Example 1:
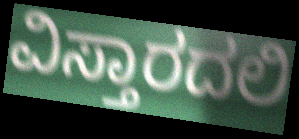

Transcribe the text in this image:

ವಿಸ್ತಾರದಲಿ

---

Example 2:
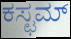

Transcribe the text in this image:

ಕಸ್ಟಮ್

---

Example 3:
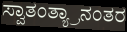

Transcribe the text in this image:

ಸ್ವಾತಂತ್ಯ್ರಾನಂತರ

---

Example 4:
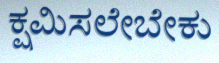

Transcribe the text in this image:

ಕ್ಷಮಿಸಲೇಬೇಕು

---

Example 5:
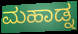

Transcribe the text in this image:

ಮಹಾಡ್ನ